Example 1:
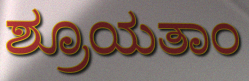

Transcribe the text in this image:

ಶ್ರೂಯತಾಂ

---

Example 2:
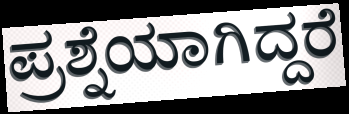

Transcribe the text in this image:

ಪ್ರಶ್ನೆಯಾಗಿದ್ದರೆ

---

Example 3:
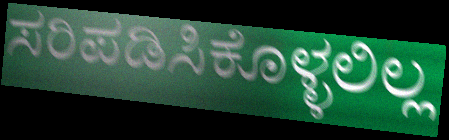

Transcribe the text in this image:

ಸರಿಪಡಿಸಿಕೊಳ್ಳಲಿಲ್ಲ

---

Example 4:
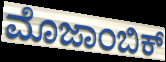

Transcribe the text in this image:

ಮೊಜಾಂಬಿಕ್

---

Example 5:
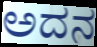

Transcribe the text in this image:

ಅದನ